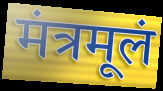
मंत्रमूलं